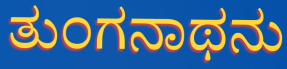
ತುಂಗನಾಥನು